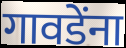
गावडेंना